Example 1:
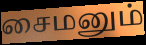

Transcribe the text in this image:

சைமனும்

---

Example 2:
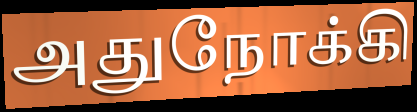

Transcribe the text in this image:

அதுநோக்கி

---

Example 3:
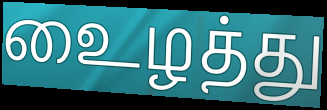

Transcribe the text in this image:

உைழத்து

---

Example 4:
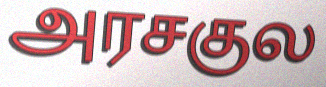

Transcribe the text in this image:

அரசகுல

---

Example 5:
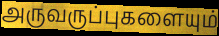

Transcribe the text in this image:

அருவருப்புகளையும்